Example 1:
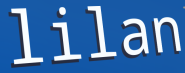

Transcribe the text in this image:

lilan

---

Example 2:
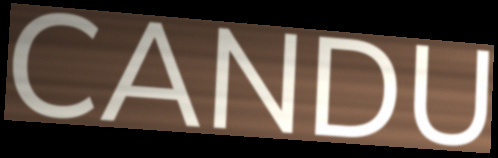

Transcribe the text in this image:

CANDU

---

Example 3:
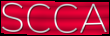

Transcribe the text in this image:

SCCA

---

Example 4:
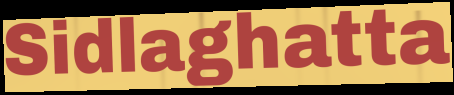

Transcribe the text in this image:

Sidlaghatta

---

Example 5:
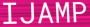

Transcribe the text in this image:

IJAMP